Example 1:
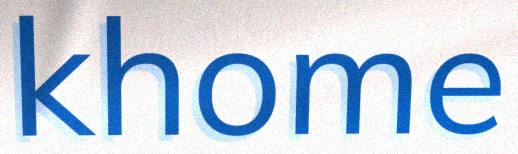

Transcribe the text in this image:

khome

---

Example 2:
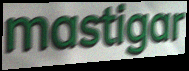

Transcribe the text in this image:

mastigar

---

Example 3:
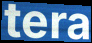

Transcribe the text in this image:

tera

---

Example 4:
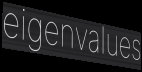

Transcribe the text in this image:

eigenvalues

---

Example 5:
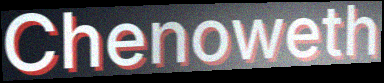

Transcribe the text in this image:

Chenoweth